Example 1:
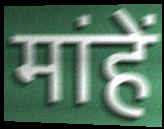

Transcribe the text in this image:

मांहें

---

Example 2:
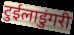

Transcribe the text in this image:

टुईलाडुंगरी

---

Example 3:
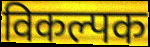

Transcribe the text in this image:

विकल्पक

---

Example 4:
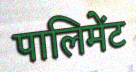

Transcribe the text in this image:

पालिमेंट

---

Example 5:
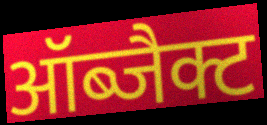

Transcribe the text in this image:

ऑब्जैक्ट